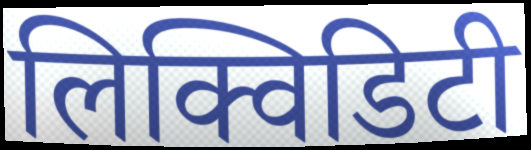
लिक्विडिटी